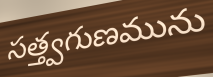
సత్త్వగుణమును